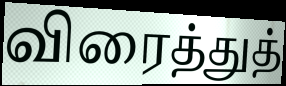
விரைத்துத்